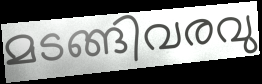
മടങ്ങിവരവു